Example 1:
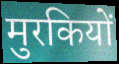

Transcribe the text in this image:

मुरकियों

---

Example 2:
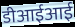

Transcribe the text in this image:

डीआईआई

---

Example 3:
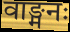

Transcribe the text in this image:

वाङ्मनः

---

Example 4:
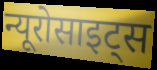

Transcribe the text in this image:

न्यूरोसाइट्स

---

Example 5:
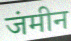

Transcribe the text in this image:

जंमीन